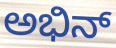
ಅಭಿನ್